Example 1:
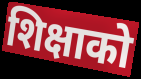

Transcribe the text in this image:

शिक्षाको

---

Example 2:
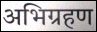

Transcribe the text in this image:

अभिग्रहण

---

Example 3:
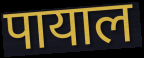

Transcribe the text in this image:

पायाल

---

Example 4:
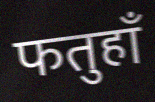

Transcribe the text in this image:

फतुहाँ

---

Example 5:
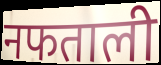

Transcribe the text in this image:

नफताली